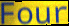
Four